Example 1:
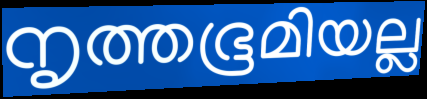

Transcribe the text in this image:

നൃത്തഭൂമിയല്ല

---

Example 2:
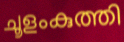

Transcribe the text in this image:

ചൂളംകുത്തി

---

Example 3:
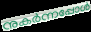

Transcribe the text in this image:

നുകർന്നപ്പോൾ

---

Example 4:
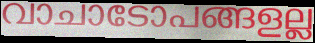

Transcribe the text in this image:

വാചാടോപങ്ങളല്ല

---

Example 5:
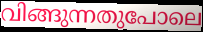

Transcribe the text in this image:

വിങ്ങുന്നതുപോലെ